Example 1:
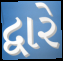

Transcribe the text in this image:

દ્વારે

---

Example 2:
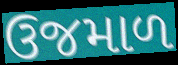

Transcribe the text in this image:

ઉજમાળ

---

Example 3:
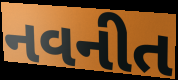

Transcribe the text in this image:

નવનીત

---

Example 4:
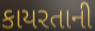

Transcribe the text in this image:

કાયરતાની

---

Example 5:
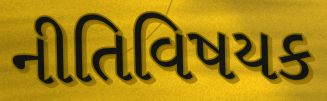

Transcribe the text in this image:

નીતિવિષયક